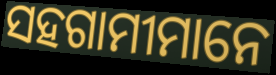
ସହଗାମୀମାନେ